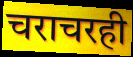
चराचरही